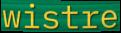
wistre